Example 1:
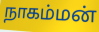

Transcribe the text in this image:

நாகம்மன்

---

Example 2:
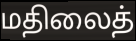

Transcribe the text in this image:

மதிலைத்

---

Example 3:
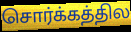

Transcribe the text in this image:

சொர்க்கத்தில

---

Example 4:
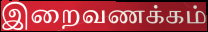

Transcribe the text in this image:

இறைவணக்கம்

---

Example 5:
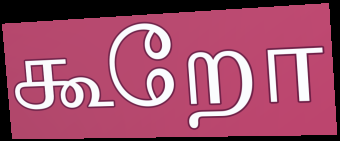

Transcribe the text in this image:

கூறோ